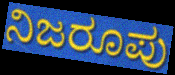
ನಿಜರೂಪು